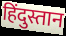
हिंदुस्तान